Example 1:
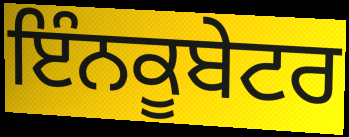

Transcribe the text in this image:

ਇੰਨਕੂਬੇਟਰ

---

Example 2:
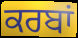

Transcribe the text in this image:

ਕਰਬਾਂ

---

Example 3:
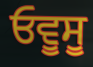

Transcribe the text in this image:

ਓਵੂਸੂ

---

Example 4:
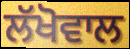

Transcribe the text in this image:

ਲੱਖੋਵਾਲ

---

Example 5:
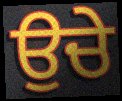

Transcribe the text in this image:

ਉਚੇ